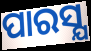
ପାରସ୍ଯ